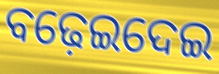
ବଢ଼େଇଦେଇ